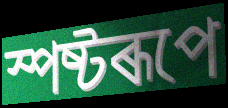
স্পষ্টৰূপে